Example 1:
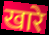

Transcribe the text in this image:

खारे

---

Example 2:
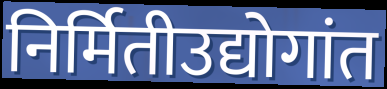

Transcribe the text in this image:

निर्मितीउद्योगांत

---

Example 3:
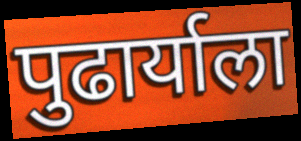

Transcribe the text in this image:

पुढार्याला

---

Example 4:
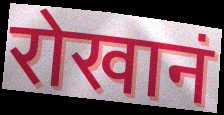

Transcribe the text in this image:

रोखानं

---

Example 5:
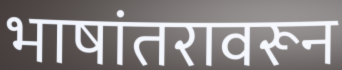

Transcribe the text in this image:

भाषांतरावरून